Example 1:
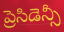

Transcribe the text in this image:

ప్రెసిడెన్సీ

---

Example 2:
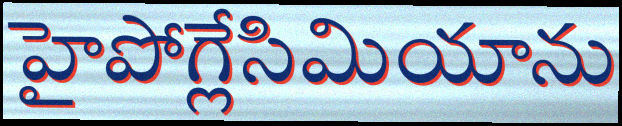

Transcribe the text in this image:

హైపోగ్లేసిమియాను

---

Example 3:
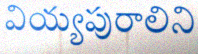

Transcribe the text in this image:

వియ్యపురాలిని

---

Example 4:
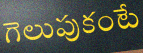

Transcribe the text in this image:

గెలుపుకంటే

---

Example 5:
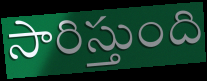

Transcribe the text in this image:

సారిస్తుంది